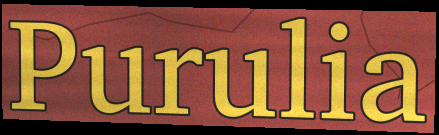
Purulia